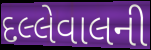
દલ્લેવાલની